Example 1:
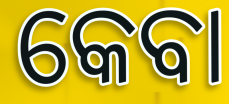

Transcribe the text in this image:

କେବା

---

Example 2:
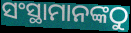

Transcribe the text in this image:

ସଂସ୍ଥାମାନଙ୍କଠୁ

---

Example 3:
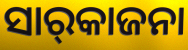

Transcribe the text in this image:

ସାର୍‌କାଜନା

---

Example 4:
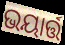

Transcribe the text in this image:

ଭୟାର୍ତ୍ତ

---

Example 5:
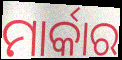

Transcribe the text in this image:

ମାର୍କାର